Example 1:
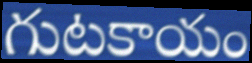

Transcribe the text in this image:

గుటకాయం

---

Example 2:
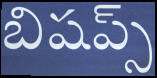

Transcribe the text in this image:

బిషప్స్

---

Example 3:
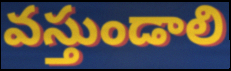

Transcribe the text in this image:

వస్తుండాలి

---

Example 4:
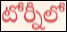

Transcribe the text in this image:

టోర్నీలో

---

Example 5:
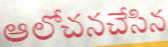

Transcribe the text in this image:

ఆలోచనచేసిన